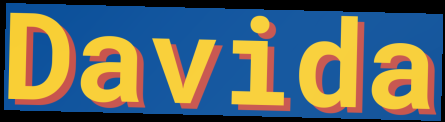
Davida